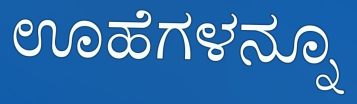
ಊಹೆಗಳನ್ನೂ